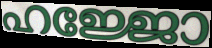
ഹജ്ജോ